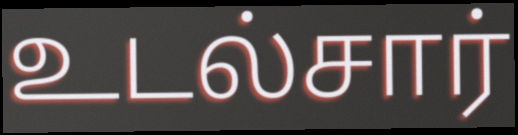
உடல்சார்